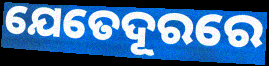
ଯେତେଦୂରରେ